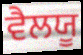
ਵੈਲਯੂ